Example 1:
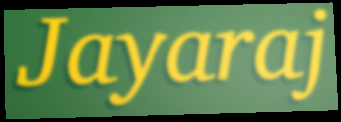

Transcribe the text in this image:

Jayaraj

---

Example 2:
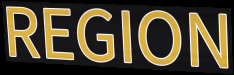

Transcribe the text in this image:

REGION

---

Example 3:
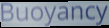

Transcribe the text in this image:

Buoyancy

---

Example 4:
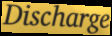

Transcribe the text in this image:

Discharge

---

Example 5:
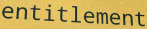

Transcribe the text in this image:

entitlement